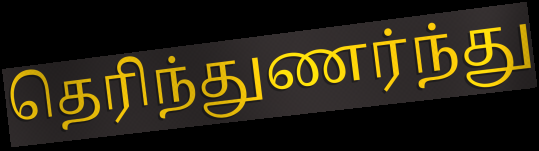
தெரிந்துணர்ந்து